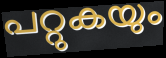
പറ്റുകയും